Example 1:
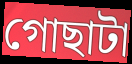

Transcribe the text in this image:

গোছাটা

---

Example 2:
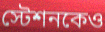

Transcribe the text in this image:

স্টেশনকেও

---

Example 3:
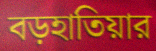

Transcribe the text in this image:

বড়হাতিয়ার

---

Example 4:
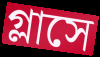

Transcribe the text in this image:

গ্লাসে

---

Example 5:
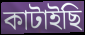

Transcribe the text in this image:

কাটাইছি